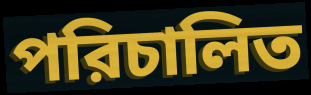
পরিচালিত